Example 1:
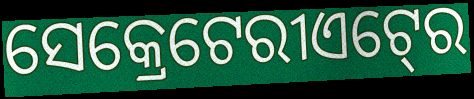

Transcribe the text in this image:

ସେକ୍ରେଟେରୀଏଟ୍‍ରେ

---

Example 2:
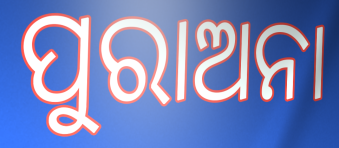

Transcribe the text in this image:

ପୁରାଅନା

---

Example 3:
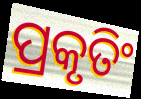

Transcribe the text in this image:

ପ୍ରକୃତିଂ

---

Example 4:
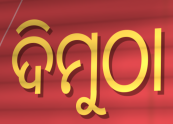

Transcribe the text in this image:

ଦିମୁଠା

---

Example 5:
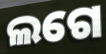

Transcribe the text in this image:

ଲଗେ